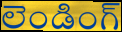
లెండింగ్